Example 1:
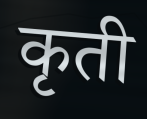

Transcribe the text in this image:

कृती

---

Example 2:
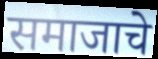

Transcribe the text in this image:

समाजाचे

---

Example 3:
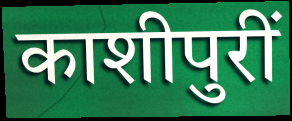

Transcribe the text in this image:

काशीपुरीं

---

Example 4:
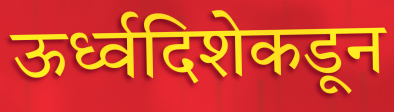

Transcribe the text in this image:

ऊर्ध्वदिशेकडून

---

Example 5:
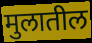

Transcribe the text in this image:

मुलातील